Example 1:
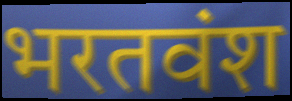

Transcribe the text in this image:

भरतवंश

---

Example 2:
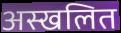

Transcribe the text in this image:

अस्खलित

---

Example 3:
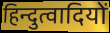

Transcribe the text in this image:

हिन्दुत्वादियों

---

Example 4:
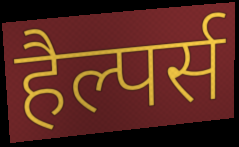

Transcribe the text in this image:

हैल्पर्स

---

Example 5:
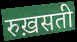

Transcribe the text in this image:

रुख़सती